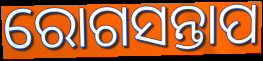
ରୋଗସନ୍ତାପ